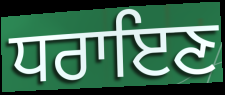
ਧਰਾਇਣ